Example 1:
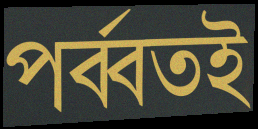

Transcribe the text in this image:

পর্ব্বতই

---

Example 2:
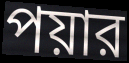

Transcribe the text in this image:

পয়ার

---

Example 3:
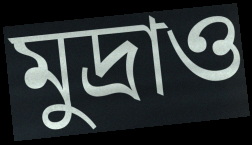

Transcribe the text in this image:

মুদ্রাও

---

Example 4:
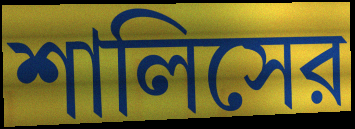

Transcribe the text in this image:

শালিসের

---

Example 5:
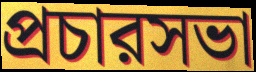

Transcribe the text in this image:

প্রচারসভা